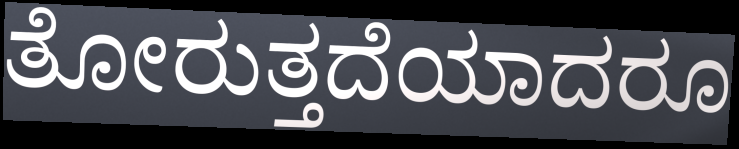
ತೋರುತ್ತದೆಯಾದರೂ